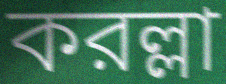
করল্লা